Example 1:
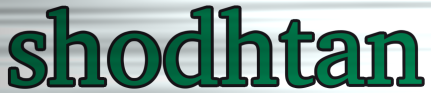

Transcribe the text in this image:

shodhtan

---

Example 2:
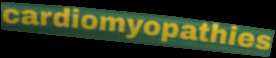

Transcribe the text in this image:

cardiomyopathies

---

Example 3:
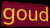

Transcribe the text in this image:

goud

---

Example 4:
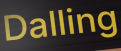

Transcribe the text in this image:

Dalling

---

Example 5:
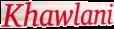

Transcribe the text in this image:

Khawlani